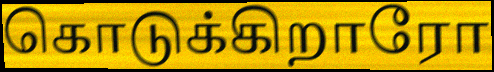
கொடுக்கிறாரோ